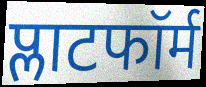
प्लाटफॉर्म